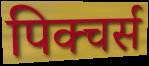
पिक्चर्स